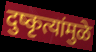
दुष्कृत्यांमुळे